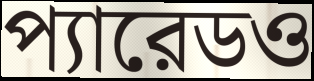
প্যারেডও